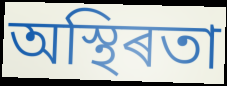
অস্থিৰতা